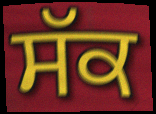
ਸੱਕ